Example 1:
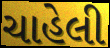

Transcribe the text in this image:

ચાહેલી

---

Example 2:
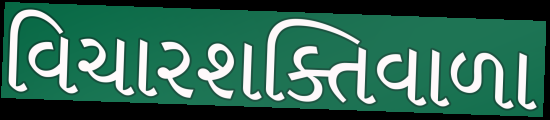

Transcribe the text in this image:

વિચારશક્તિવાળા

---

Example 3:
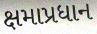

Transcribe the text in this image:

ક્ષમાપ્રધાન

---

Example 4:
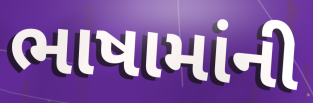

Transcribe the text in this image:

ભાષામાંની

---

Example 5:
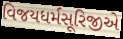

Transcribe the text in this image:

વિજયધર્મસૂરિજીએ